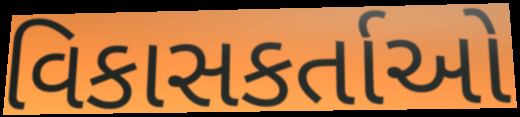
વિકાસકર્તાઓ